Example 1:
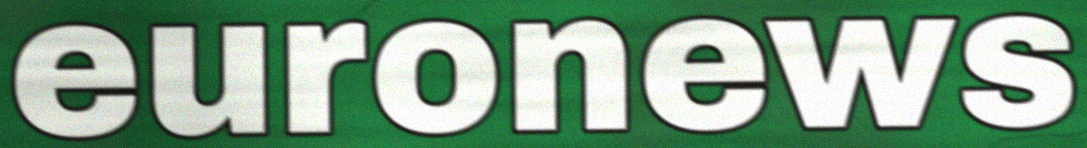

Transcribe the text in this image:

euronews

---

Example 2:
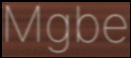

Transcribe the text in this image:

Mgbe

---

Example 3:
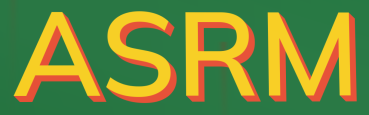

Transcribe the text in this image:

ASRM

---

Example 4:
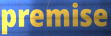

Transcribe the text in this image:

premise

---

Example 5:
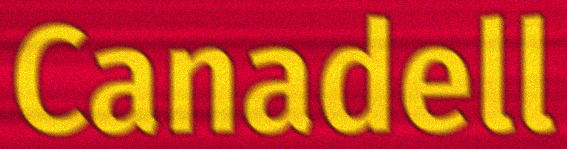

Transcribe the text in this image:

Canadell